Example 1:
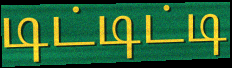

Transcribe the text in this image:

டிட்டிட்டி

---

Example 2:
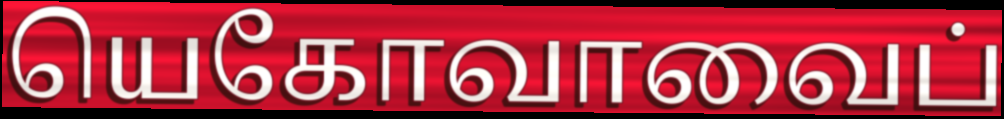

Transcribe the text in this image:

யெகோவாவைப்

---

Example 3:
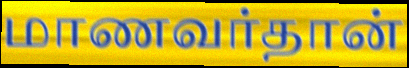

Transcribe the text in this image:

மாணவர்தான்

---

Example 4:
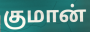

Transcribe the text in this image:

குமான்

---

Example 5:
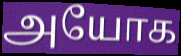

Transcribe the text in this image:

அயோக